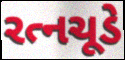
રત્નચૂડે